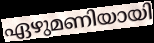
ഏഴുമണിയായി